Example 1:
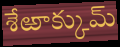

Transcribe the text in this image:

శేఱాక్కుమ్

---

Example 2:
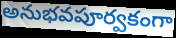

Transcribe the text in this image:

అనుభవపూర్వకంగా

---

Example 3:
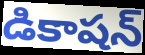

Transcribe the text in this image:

డికాషన్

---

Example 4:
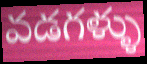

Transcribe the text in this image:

వడగళ్ళు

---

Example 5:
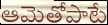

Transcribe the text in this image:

ఆమెతోపాటే